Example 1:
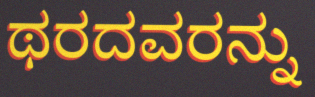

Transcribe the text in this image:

ಥರದವರನ್ನು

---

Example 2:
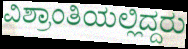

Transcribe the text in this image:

ವಿಶ್ರಾಂತಿಯಲ್ಲಿದ್ದರು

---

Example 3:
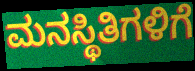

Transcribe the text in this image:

ಮನಸ್ಥಿತಿಗಳಿಗೆ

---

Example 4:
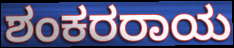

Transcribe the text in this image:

ಶಂಕರರಾಯ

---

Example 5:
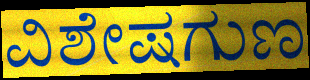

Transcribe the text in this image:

ವಿಶೇಷಗುಣ